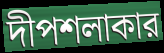
দীপশলাকার